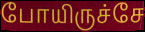
போயிருச்சே